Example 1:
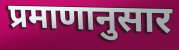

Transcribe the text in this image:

प्रमाणानुसार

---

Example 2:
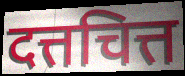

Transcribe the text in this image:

दत्तचित्त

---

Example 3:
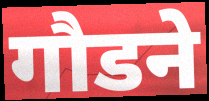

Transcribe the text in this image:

गौडने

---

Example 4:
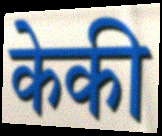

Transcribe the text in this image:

केकी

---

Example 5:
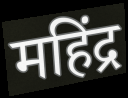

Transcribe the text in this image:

महिंद्र